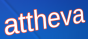
attheva